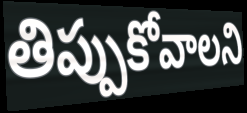
తిప్పుకోవాలని